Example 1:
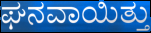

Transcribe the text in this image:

ಘನವಾಯಿತ್ತು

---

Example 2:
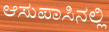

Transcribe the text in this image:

ಆಸುಪಾಸಿನಲ್ಲಿ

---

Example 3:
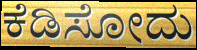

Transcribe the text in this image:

ಕೆಡಿಸೋದು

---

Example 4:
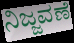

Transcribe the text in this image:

ನಿಜ್ಜವಣೆ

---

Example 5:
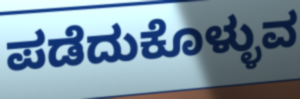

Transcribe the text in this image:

ಪಡೆದುಕೊಳ್ಳುವ